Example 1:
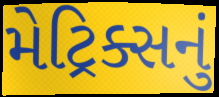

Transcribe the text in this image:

મેટ્રિક્સનું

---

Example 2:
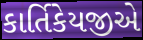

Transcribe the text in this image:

કાર્તિકેયજીએ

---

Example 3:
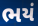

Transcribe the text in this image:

ભયં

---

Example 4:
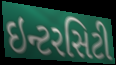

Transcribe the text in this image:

ઇન્ટરસિટી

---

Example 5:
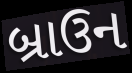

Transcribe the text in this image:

બ્રાઉન